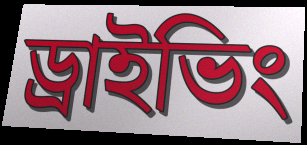
ড্রাইভিং